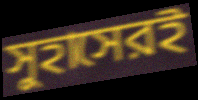
সুহাসেরই